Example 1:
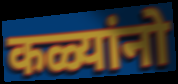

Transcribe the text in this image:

कळ्यांनो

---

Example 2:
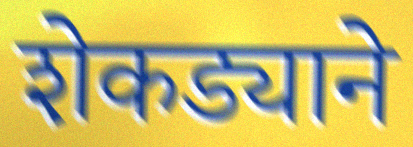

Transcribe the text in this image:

शेकड्याने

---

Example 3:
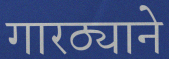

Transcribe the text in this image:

गारठ्याने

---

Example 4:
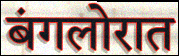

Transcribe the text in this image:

बंगलोरात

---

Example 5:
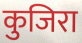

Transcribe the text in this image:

कुजिरा